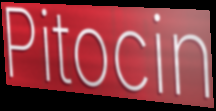
Pitocin